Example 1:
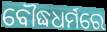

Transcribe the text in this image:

ବୌଦ୍ଧଧର୍ମରେ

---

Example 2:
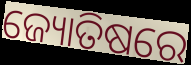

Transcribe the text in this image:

ଜ୍ୟୋତିଷରେ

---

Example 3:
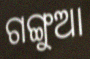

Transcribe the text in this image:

ଗଙ୍ଗୁଆ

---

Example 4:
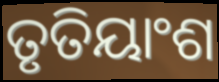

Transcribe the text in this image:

ତୃତିୟାଂଶ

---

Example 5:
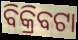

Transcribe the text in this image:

ବିକ୍ରିବଟା